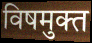
विषमुक्त